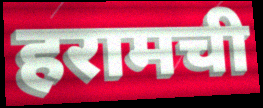
हरामची